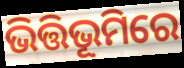
ଭିତ୍ତିଭୂମିରେ